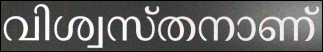
വിശ്വസ്തനാണ്